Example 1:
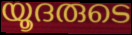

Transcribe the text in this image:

യൂദരുടെ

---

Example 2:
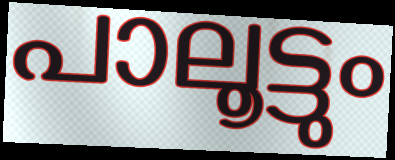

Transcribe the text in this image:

പാലൂട്ടും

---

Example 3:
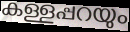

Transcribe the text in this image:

കള്ളപ്പറയും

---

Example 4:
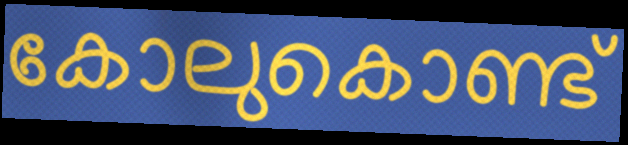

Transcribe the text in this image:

കോലുകൊണ്ട്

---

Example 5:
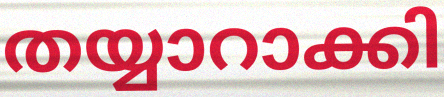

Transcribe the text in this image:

തയ്യാറാക്കി